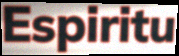
Espiritu